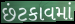
છંટકાવમાં